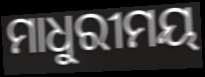
ମାଧୁରୀମୟ